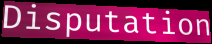
Disputation